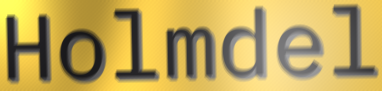
Holmdel